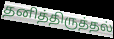
தனித்திருத்தல்